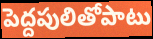
పెద్దపులితోపాటు